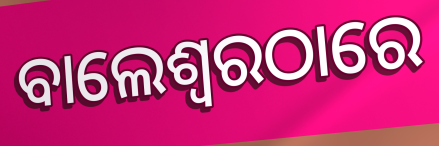
ବାଲେଶ୍ଵରଠାରେ